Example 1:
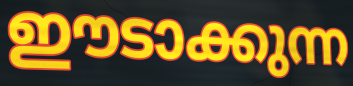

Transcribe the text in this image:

ഈടാക്കുന്ന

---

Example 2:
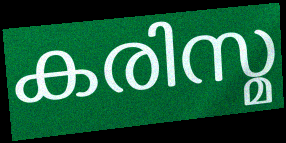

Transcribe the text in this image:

കരിസ്മ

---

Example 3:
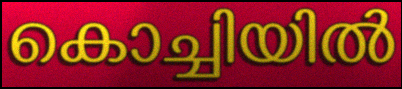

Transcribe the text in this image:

കൊച്ചിയിൽ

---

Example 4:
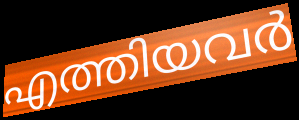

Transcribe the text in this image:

എത്തിയവർ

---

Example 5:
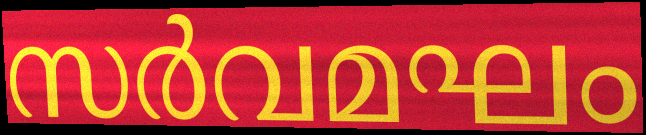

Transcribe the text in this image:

സർവമഘം